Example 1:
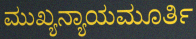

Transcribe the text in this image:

ಮುಖ್ಯನ್ಯಾಯಮೂರ್ತಿ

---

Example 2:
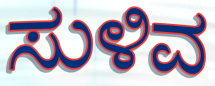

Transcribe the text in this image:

ಸುಳಿವ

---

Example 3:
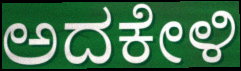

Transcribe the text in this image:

ಅದಕೇಳಿ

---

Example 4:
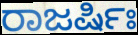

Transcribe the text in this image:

ರಾಜರ್ಷಿಃ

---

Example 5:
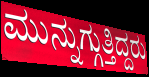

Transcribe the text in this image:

ಮುನ್ನುಗ್ಗುತ್ತಿದ್ದರು